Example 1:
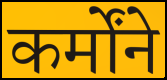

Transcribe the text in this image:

कर्मोंने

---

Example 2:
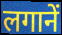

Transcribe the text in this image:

लगानें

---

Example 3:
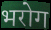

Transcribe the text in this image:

भरोग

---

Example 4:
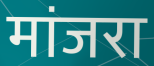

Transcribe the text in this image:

मांजरा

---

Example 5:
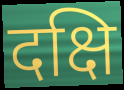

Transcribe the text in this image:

दक्षि